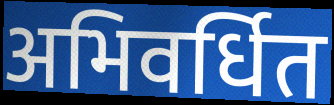
अभिवर्धित